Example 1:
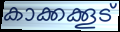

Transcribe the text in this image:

കാക്കക്കൂട്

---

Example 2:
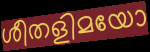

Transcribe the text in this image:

ശീതളിമയോ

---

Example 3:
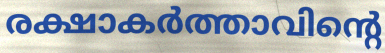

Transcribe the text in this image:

രക്ഷാകർത്താവിന്റെ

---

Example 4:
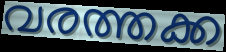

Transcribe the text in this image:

വരത്തക്ക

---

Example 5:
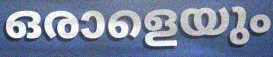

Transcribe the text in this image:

ഒരാളെയും